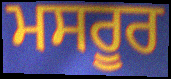
ਮਸਰੂਰ